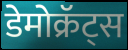
डेमोक्रॅट्स